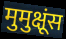
मुमुक्षूंस